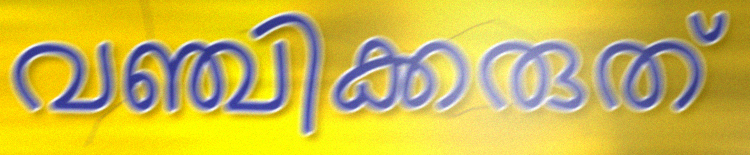
വഞ്ചിക്കരുത്